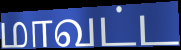
மாவட்ட